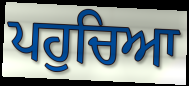
ਪਹੁਚਿਆ